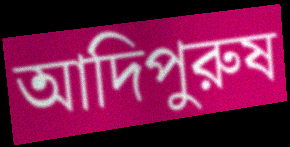
আদিপুরুষ